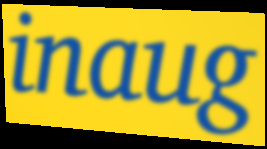
inaug